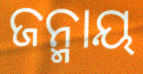
ଜନ୍ମାୟ